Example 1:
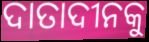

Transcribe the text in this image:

ଦାତାଦୀନକୁ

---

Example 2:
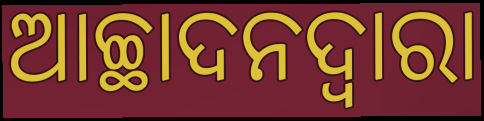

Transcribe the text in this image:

ଆଚ୍ଛାଦନଦ୍ୱାରା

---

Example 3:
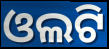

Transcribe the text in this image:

ଓଲଟି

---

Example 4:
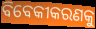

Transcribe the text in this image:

ବିବେକୀକରଣକୁ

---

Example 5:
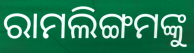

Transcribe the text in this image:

ରାମଲିଙ୍ଗମଙ୍କୁ